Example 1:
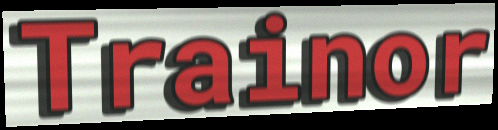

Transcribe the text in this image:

Trainor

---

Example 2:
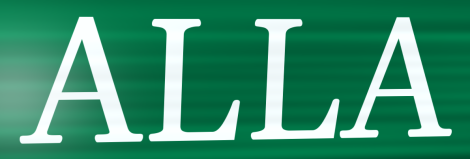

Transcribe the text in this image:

ALLA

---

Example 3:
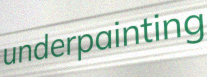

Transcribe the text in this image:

underpainting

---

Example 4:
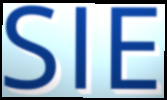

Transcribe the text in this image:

SIE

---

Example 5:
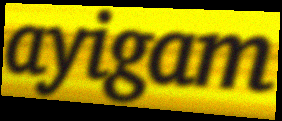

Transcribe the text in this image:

ayigam